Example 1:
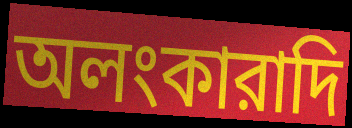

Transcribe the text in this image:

অলংকারাদি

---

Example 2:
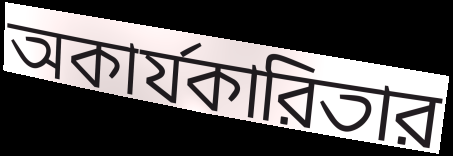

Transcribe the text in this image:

অকার্যকারিতার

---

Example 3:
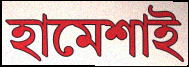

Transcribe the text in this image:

হামেশাই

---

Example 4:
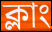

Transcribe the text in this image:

ক্লাং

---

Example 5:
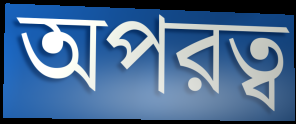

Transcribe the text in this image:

অপরত্ব